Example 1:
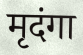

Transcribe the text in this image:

मृदंगा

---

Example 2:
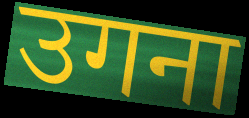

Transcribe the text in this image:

उगना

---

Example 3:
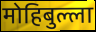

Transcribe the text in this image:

मोहिबुल्ला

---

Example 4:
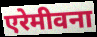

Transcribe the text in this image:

एरेमीवना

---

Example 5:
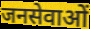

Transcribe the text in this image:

जनसेवाओं